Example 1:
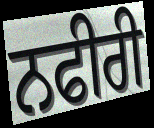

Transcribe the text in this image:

ਨਫੀਰੀ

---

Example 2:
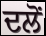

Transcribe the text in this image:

ਦਲੋਂ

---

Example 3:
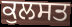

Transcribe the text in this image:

ਕੁਲਸਤ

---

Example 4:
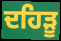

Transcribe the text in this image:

ਦਹਿੜੂ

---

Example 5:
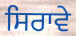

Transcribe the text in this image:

ਸਿਰਾਵੇ